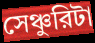
সেঞ্চুরিটা